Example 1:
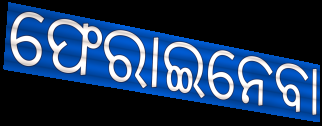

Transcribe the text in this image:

ଫେରାଇନେବା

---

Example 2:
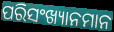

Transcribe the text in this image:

ପରିସଂଖ୍ୟାନମାନ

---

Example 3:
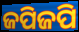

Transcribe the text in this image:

ଜପିଜପି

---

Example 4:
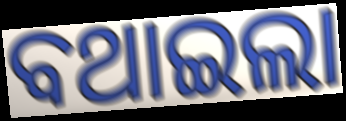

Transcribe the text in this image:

ବଥାଇଲା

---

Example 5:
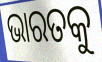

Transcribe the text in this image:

ଭାରତକୁ